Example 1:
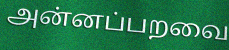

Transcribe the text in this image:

அன்னப்பறவை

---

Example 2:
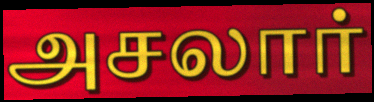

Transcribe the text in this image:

அசலார்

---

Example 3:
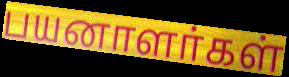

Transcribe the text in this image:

பயனாளர்கள்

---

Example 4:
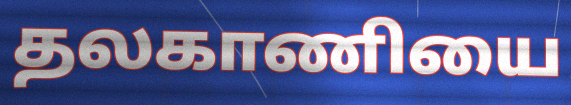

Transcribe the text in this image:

தலகாணியை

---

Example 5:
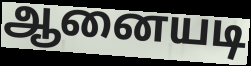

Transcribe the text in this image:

ஆனையடி